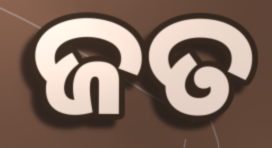
ଜତ